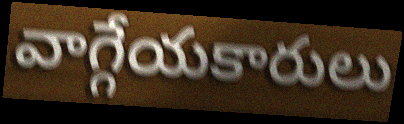
వాగ్గేయకారులు